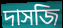
দাসজি